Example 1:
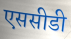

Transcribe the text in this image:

एससीडी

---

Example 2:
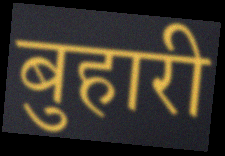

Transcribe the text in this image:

बुहारी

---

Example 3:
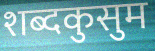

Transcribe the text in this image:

शब्दकुसुम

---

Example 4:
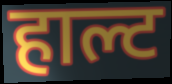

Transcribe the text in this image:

हाल्ट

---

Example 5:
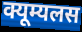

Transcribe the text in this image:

क्यूम्यलस